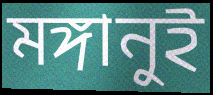
মঙ্গানুই